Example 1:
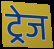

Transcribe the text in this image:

ट्रेज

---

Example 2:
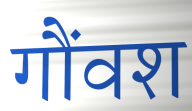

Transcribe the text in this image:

गौंवश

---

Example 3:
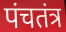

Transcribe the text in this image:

पंचतंत्र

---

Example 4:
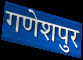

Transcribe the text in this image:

गणेशपुर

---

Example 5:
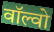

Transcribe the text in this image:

वॉल्‍वो